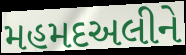
મહમદઅલીને